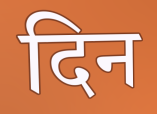
दिन